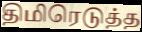
திமிரெடுத்த